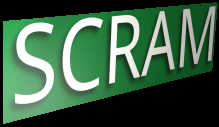
SCRAM